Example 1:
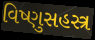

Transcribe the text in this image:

વિષ્ણુસહસ્ત્ર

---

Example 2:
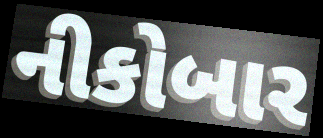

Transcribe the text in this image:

નીકોબાર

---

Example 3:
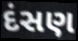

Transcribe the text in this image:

દંસણ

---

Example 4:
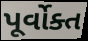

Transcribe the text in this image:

પૂર્વોક્ત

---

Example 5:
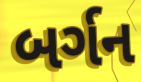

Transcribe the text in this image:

બર્ગન